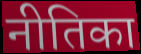
नीतिका